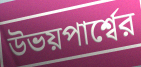
উভয়পার্শ্বের